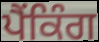
ਪੈਂਕਿੰਗ